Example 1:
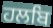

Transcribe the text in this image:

ਹਲਬਿ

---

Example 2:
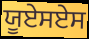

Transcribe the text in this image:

ਯੂਏਸਏਸ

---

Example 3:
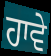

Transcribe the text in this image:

ਹਾਵੇ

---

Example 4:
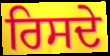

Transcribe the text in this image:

ਰਿਸਦੇ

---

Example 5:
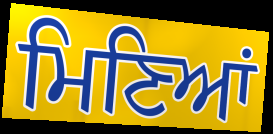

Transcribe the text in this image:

ਮਿਣਿਆਂ